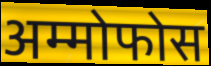
अम्मोफोस